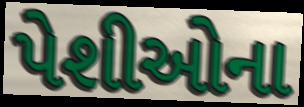
પેશીઓના